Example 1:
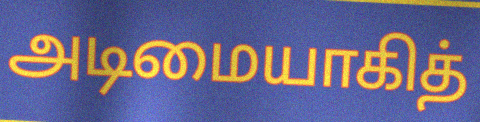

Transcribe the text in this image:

அடிமையாகித்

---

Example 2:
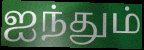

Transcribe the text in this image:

ஐந்தும்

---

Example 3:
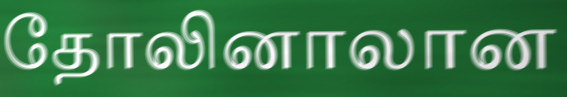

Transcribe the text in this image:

தோலினாலான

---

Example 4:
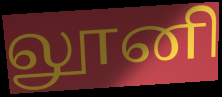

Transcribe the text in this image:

லூனி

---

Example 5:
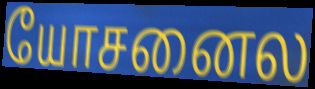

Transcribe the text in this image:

யோசனைல